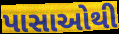
પાસાઓથી